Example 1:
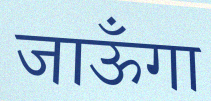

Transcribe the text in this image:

जाऊँगा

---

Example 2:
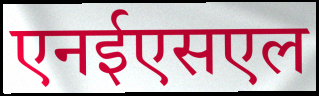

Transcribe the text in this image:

एनईएसएल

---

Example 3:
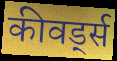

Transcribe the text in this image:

कीवर्ड्स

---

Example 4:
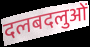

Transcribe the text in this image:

दलबदलुओं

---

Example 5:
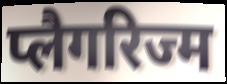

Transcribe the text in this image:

प्लैगरिज्म